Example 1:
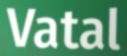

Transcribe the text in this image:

Vatal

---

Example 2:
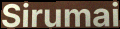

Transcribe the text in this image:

Sirumai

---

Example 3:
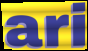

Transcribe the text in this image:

ari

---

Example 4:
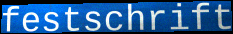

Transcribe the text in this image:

festschrift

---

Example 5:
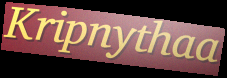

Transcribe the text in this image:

Kripnythaa